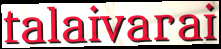
talaivarai